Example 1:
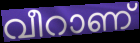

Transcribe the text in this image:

വീറാണ്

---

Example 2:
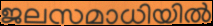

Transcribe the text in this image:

ജലസമാധിയിൽ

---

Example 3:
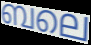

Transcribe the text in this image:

ബലെ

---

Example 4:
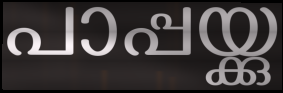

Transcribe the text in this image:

പാപ്പയ്ക്കു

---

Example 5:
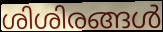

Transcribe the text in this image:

ശിശിരങ്ങൾ